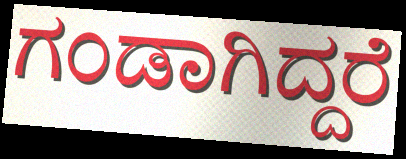
ಗಂಡಾಗಿದ್ದರೆ